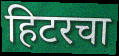
हिटरचा